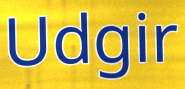
Udgir